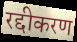
रद्दीकरण